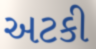
અટકી